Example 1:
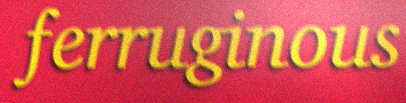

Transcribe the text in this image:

ferruginous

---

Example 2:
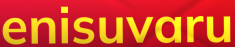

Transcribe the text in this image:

enisuvaru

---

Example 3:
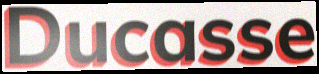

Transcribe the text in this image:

Ducasse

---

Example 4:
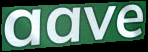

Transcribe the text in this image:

aave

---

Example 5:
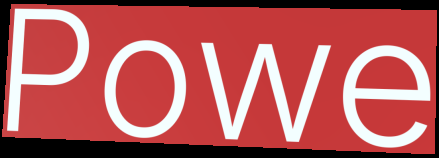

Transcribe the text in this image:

Powe